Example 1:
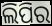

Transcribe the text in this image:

ଲିପିର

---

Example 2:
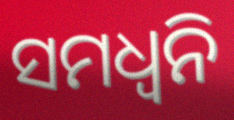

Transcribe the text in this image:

ସମଧ୍ୱନି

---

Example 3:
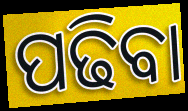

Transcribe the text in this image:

ପଢିବା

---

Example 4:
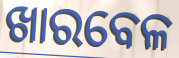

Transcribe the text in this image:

ଖାରବେଳ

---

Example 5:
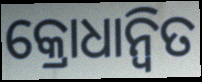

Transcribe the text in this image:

କ୍ରୋଧାନ୍ୱିତ